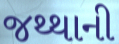
જથ્થાની